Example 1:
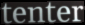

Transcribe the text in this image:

tenter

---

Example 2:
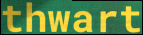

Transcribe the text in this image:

thwart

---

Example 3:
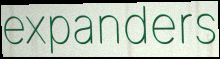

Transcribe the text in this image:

expanders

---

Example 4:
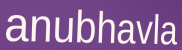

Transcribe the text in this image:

anubhavla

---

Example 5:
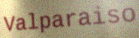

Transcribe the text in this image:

Valparaiso